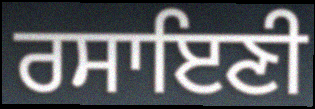
ਰਸਾਇਣੀ